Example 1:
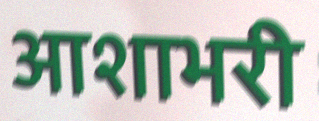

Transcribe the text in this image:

आशाभरी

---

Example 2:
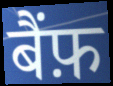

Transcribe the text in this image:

बैंफ़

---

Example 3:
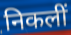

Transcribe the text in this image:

निकलीं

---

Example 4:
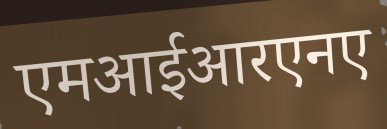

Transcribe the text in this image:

एमआईआरएनए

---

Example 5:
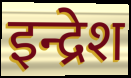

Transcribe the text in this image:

इन्द्रेश